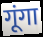
गूंगा